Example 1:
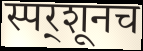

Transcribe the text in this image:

स्पर्शूनच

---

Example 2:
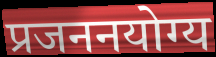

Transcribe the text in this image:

प्रजननयोग्य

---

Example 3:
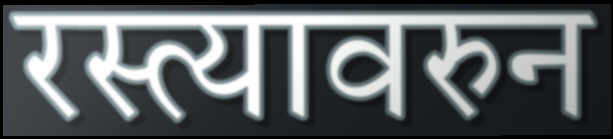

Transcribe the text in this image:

रस्त्यावरुन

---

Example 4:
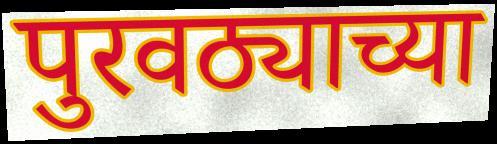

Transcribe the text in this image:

पुरवठ्याच्या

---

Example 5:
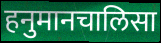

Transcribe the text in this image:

हनुमानचालिसा